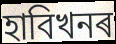
হাবিখনৰ